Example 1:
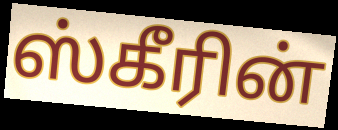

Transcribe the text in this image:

ஸ்கீரின்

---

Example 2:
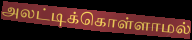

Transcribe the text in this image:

அலட்டிக்கொள்ளாமல்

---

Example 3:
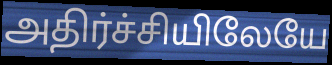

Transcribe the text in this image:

அதிர்ச்சியிலேயே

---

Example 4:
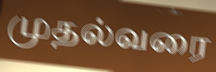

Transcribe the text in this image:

முதல்வரை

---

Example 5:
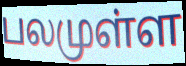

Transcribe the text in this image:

பலமுள்ள